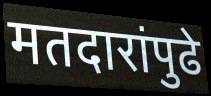
मतदारांपुढे